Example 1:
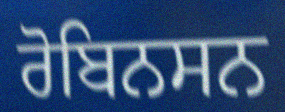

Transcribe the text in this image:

ਰੋਬਿਨਸਨ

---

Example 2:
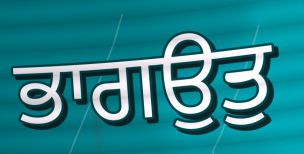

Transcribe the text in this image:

ਭਾਗਉਤੁ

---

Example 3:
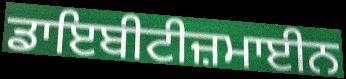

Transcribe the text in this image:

ਡਾਇਬੀਟੀਜ਼ਮਾਈਨ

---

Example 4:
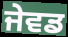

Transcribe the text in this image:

ਜੇਵਡ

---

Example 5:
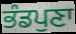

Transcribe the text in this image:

ਭੰਡਪੁਣਾ